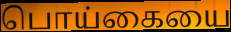
பொய்கையை